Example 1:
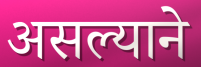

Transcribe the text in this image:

असल्याने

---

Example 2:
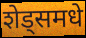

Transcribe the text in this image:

शेड्समधे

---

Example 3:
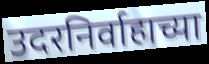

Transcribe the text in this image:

उदरनिर्वाहाच्या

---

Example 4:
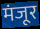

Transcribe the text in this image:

मंजूर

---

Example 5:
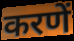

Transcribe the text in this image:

करणें